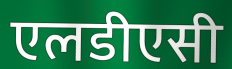
एलडीएसी